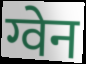
ग्वेन